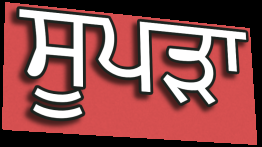
ਸੂਪੜਾ